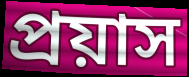
প্ৰয়াস